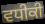
ਵਧੀਕੀ